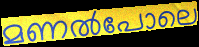
മണൽപോലെ